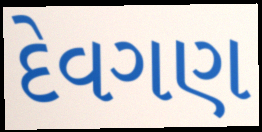
દેવગણ